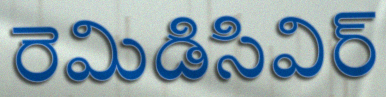
రెమిడిసివిర్